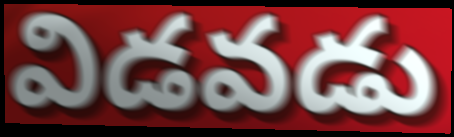
విడవడు